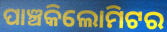
ପାଞ୍ଚକିଲୋମିଟର